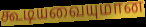
கூடியவையுமான